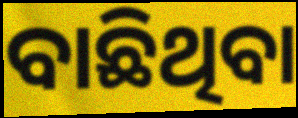
ବାଛିଥିବା